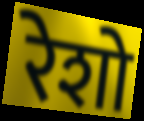
रेशो